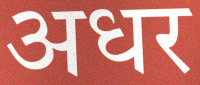
अधर